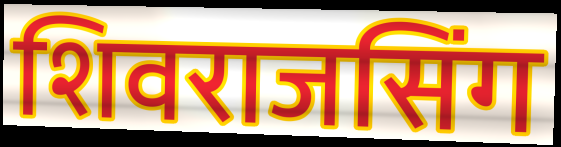
शिवराजसिंग